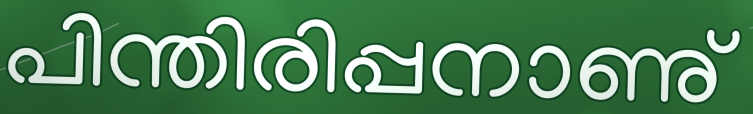
പിന്തിരിപ്പനാണു്